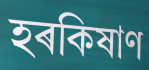
হৰকিষাণ